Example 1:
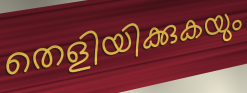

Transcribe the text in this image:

തെളിയിക്കുകയും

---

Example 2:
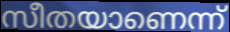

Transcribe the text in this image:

സീതയാണെന്ന്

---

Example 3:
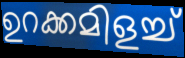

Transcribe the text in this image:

ഉറക്കമിളച്ച്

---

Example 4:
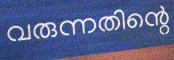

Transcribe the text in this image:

വരുന്നതിന്റെ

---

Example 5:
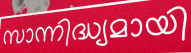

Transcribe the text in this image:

സാന്നിദ്ധ്യമായി